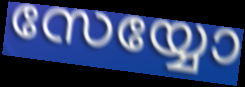
സേയ്യോ